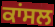
ਕਾਂਸਲ